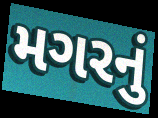
મગરનું